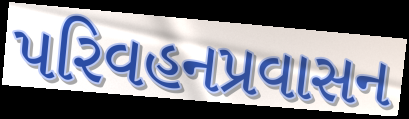
પરિવહનપ્રવાસન